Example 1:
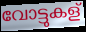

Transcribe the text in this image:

വോട്ടുകള്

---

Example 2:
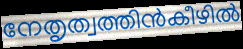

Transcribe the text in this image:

നേതൃത്വത്തിൻകീഴിൽ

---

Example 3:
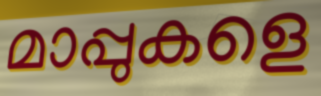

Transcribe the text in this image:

മാപ്പുകളെ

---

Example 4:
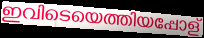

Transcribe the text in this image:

ഇവിടെയെത്തിയപ്പോള്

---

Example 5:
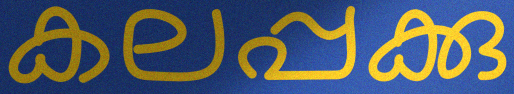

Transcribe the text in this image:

കലപ്പക്കു